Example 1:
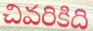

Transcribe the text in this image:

చివరికిది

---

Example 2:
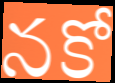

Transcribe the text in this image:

నకో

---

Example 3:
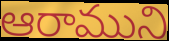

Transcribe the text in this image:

ఆరాముని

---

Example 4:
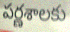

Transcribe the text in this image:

పర్ణశాలకు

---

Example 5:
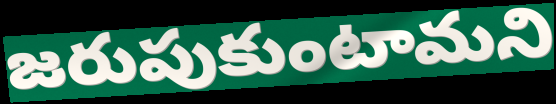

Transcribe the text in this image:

జరుపుకుంటామని